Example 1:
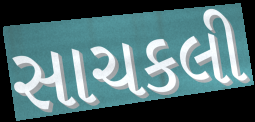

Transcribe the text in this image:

સાચકલી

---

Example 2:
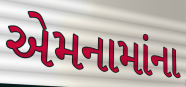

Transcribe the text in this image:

એમનામાંના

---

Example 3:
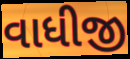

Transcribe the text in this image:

વાધીજી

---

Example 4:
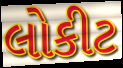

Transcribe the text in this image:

લોકીટ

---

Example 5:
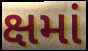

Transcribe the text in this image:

ક્ષમાં